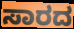
ಸಾರದ